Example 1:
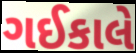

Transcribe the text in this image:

ગઈકાલે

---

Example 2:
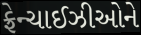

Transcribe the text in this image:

ફ્રેન્ચાઈઝીઓને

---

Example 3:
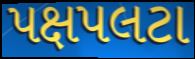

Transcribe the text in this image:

પક્ષપલટા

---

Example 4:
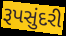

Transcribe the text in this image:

રૂપસુંદરી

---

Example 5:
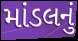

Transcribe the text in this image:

માંડલનું